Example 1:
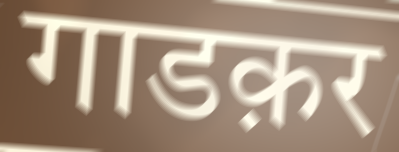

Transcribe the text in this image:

गाडक़र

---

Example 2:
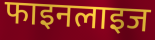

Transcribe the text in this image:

फाइनलाइज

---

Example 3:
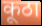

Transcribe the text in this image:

कूठा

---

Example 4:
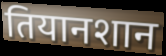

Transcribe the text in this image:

तियानशान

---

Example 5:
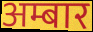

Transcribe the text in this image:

अम्बार